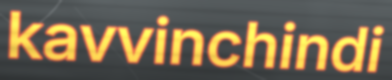
kavvinchindi